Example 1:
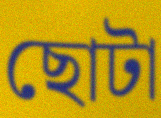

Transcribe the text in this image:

ছোটা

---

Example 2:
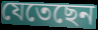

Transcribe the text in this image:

যেতেছেন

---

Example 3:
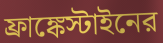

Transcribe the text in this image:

ফ্রাঙ্কেস্টাইনের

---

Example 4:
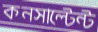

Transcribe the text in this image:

কনসাল্টেন্ট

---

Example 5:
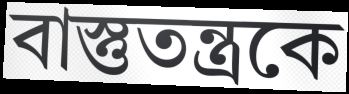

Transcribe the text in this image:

বাস্তুতন্ত্রকে